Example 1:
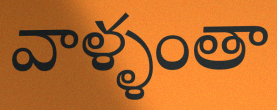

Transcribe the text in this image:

వాళ్ళంతా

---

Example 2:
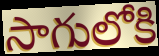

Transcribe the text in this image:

సాగులోకి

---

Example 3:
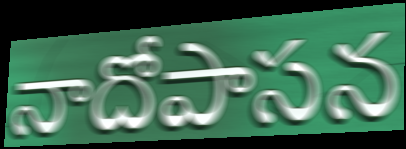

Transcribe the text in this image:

నాదోపాసన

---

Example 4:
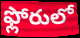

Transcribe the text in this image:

ఫ్లోరులో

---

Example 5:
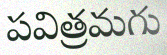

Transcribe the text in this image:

పవిత్రమగు